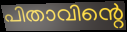
പിതാവിന്റെ